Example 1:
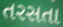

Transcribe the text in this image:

તરસતા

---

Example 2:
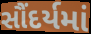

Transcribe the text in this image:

સૌંદર્યમાં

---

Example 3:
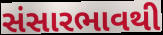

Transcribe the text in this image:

સંસારભાવથી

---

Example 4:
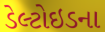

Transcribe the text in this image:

ડેલ્ટોઇડના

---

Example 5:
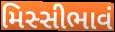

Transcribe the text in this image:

મિસ્સીભાવં